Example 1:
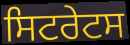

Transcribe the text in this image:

ਸਿਟਰੇਟਸ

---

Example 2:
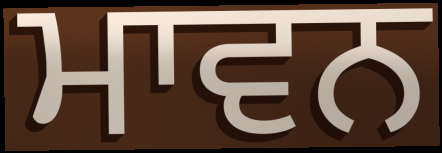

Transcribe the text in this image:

ਮਾਵਨ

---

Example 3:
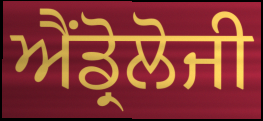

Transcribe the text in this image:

ਐਂਡ੍ਰੋਲੋਜੀ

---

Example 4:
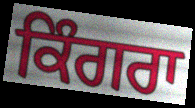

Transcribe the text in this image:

ਕਿੰਗਰਾ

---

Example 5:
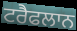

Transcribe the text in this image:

ਟਰੈਫਲਾਨ